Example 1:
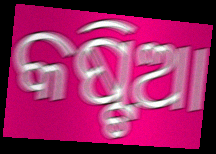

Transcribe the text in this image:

କଷ୍ଟିଆ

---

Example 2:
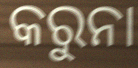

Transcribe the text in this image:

କରୁନା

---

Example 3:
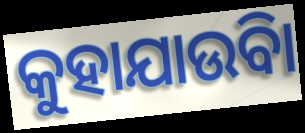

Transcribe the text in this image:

କୁହାଯାଉିବା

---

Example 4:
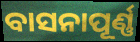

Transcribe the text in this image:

ବାସନାପୂର୍ଣ୍ଣ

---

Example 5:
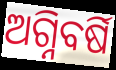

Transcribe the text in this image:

ଅଗ୍ନିବର୍ଷି